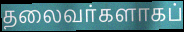
தலைவர்களாகப்